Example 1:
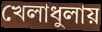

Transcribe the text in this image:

খেলাধুলায়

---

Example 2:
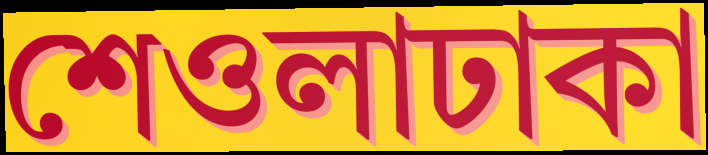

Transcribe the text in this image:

শেওলাঢাকা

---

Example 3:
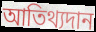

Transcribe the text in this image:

আতিথ্যদান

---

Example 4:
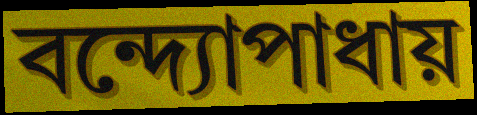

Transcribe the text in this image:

বন্দ্যোপাধায়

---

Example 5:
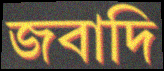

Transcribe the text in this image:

জবাদি